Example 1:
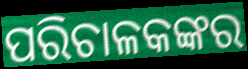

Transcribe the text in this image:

ପରିଚାଳକଙ୍କର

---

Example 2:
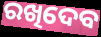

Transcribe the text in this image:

ରଖିଦେବ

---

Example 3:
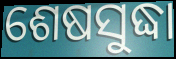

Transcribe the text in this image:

ଶେଷସୁଦ୍ଧା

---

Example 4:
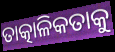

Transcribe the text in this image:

ତାତ୍କାଳିକତାକୁ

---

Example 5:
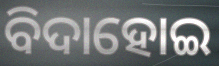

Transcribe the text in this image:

ବିଦାହୋଇ